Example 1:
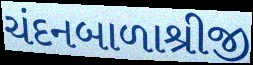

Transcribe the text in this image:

ચંદનબાળાશ્રીજી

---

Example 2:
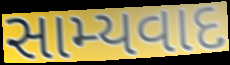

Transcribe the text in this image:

સામ્યવાદ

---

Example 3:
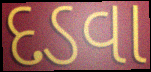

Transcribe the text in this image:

દડવા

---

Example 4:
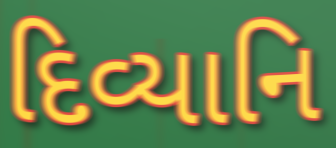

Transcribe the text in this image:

દિવ્યાનિ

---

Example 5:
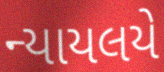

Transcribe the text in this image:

ન્યાયલયે